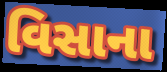
વિસાના